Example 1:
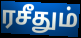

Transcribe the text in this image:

ரசீதும்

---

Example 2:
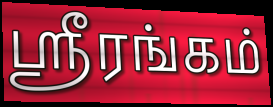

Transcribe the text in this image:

ஸ்ரீரங்கம்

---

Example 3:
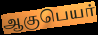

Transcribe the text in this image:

ஆகுபெயர்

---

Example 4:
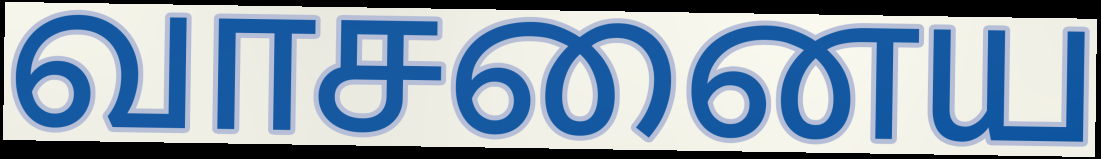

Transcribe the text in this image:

வாசனைய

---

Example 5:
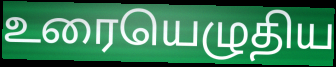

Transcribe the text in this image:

உரையெழுதிய